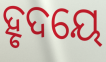
ହୃଦୟେ